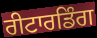
ਰੀਟਾਰਡਿੰਗ